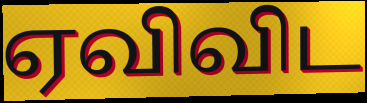
ஏவிவிட